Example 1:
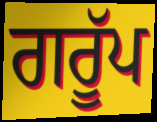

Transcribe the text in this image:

ਗਰੂੱਪ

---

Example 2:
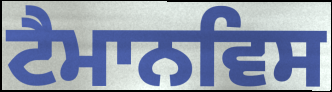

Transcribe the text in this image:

ਟੈਮਾਨਵਿਸ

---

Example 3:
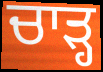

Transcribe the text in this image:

ਚਾਡ਼੍ਹ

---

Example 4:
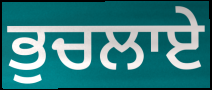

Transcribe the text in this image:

ਭੁਚਲਾਏ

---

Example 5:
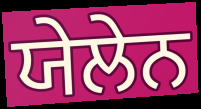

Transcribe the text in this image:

ਯੇਲੇਨ